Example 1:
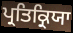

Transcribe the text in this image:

ਪ੍ਰਤਿਕ੍ਰਿਯਾ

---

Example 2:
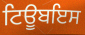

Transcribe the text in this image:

ਟਿਊਬਇਸ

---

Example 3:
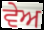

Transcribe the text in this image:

ਵੇਅ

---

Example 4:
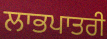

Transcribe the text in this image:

ਲਾਭਪਾਤਰੀ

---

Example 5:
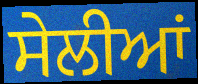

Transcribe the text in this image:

ਸੇਲੀਆਂ